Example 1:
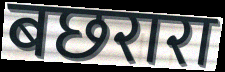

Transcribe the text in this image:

बछरारा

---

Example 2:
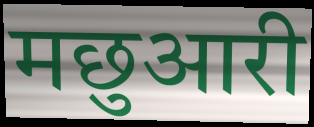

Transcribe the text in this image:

मछुआरी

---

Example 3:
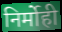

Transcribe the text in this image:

निर्मोही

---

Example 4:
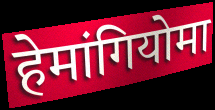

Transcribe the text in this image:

हेमांगियोमा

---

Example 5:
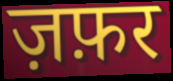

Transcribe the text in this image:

ज़फ़र